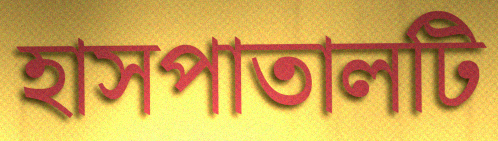
হাসপাতালটি